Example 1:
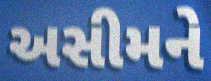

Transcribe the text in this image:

અસીમને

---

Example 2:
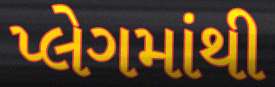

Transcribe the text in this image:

પ્લેગમાંથી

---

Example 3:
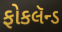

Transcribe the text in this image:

ફોકલૅન્ડ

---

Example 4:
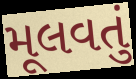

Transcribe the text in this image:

મૂલવતું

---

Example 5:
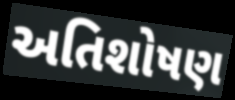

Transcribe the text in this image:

અતિશોષણ